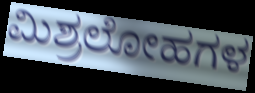
ಮಿಶ್ರಲೋಹಗಳ